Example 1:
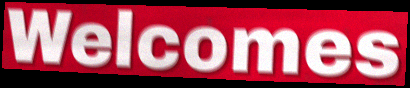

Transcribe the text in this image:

Welcomes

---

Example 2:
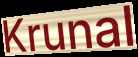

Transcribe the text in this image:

Krunal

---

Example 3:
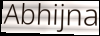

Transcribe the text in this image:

Abhijna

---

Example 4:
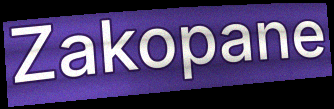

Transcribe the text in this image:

Zakopane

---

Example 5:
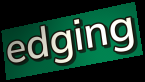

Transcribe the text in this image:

edging